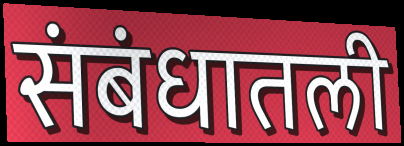
संबंधातली